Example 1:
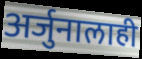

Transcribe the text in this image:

अर्जुनालाही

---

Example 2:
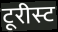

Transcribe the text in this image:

टूरीस्ट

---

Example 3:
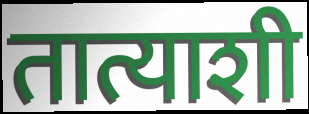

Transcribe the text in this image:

तात्याशी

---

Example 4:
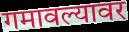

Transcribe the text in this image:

गमावल्यावर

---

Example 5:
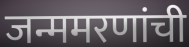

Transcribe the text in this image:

जन्ममरणांची